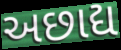
અછાદ્ય